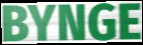
BYNGE